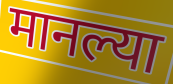
मानल्या